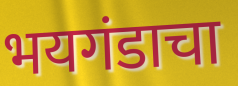
भयगंडाचा